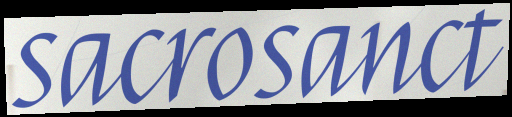
sacrosanct